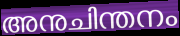
അനുചിന്തനം